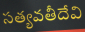
సత్యవతీదేవి